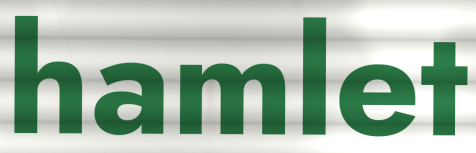
hamlet